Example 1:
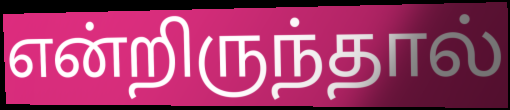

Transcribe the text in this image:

என்றிருந்தால்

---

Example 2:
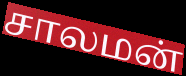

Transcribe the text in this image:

சாலமன்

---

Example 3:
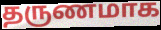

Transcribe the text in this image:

தருணமாக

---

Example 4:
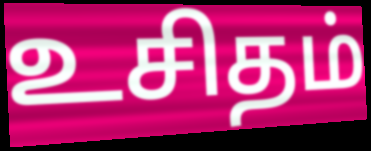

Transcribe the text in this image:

உசிதம்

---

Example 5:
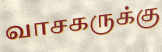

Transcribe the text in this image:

வாசகருக்கு